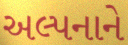
અલ્પનાને